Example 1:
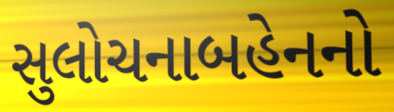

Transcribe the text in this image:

સુલોચનાબહેનનો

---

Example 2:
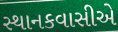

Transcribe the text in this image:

સ્થાનકવાસીએ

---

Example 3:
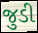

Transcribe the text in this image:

જુડી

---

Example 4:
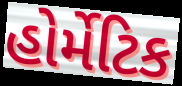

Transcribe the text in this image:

હોર્મેટિક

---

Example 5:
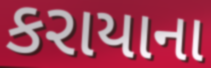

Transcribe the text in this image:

કરાયાના